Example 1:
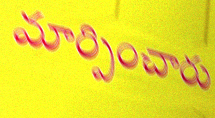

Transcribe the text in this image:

మార్పించారు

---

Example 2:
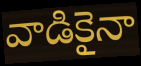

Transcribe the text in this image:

వాడికైనా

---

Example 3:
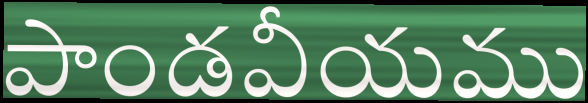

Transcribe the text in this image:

పాండవీయము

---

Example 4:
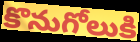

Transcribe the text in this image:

కొనుగోలుకి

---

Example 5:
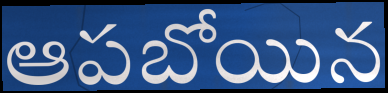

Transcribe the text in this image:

ఆపబోయిన